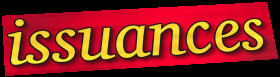
issuances